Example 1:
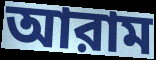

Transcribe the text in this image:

আরাম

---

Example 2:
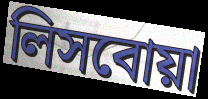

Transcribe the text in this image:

লিসবোয়া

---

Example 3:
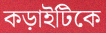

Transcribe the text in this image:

কড়াইটিকে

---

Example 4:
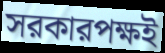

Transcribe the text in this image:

সরকারপক্ষই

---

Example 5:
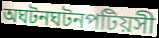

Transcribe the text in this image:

অঘটনঘটনপটিয়সী